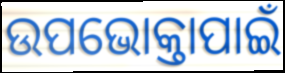
ଉପଭୋକ୍ତାପାଇଁ